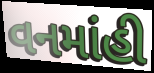
વનમાંહી